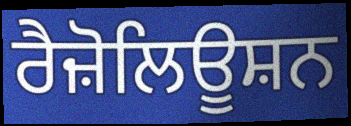
ਰੈਜ਼ੋਲਿਊਸ਼ਨ